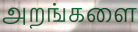
அறங்களை